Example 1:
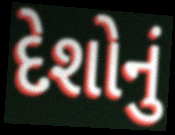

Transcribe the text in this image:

દેશોનું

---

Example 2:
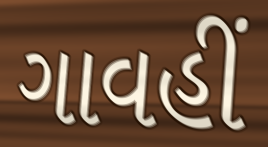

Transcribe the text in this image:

ગાવહીં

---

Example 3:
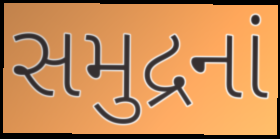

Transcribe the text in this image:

સમુદ્રનાં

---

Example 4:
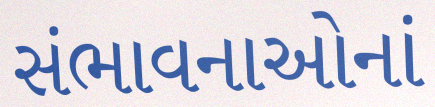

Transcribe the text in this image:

સંભાવનાઓનાં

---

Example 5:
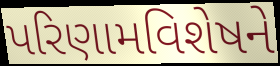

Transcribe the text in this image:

પરિણામવિશેષને